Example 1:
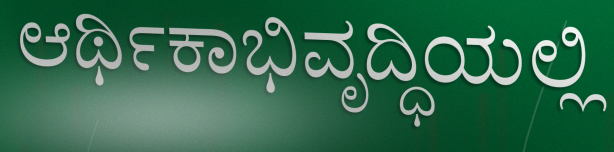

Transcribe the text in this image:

ಆರ್ಥಿಕಾಭಿವೃದ್ಧಿಯಲ್ಲಿ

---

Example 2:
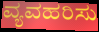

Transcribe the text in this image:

ವ್ಯವಹರಿಸು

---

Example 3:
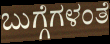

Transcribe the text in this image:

ಬುಗ್ಗೆಗಳಂತೆ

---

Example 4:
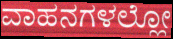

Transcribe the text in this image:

ವಾಹನಗಳಲ್ಲೋ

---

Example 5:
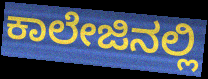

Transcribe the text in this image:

ಕಾಲೇಜಿನಲ್ಲಿ